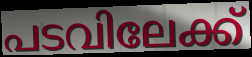
പടവിലേക്ക്